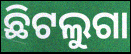
ଛିଟଲୁଗା